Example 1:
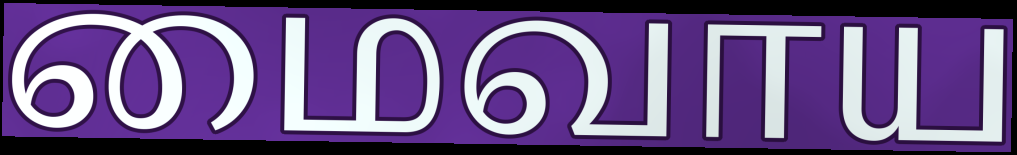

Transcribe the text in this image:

மைவாய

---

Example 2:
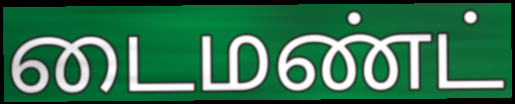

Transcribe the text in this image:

டைமண்ட்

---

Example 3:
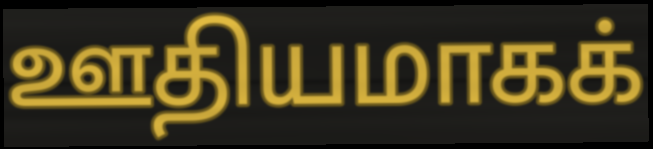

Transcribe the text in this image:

ஊதியமாகக்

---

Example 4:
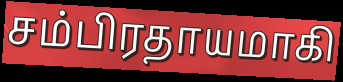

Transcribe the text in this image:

சம்பிரதாயமாகி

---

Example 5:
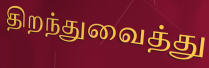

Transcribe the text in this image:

திறந்துவைத்து